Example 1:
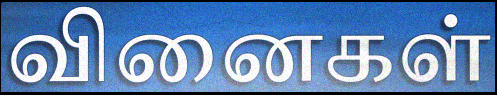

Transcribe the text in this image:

வினைகள்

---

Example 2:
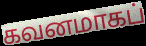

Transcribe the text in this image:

கவனமாகப்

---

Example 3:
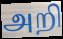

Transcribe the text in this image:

அறி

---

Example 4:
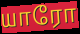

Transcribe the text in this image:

யாரோ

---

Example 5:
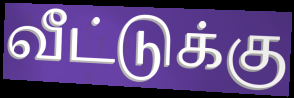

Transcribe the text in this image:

வீட்டுக்கு